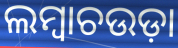
ଲମ୍ବାଚଉଡ଼ା